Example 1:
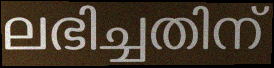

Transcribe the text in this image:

ലഭിച്ചതിന്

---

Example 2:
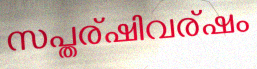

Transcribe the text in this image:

സപ്തര്ഷിവര്ഷം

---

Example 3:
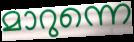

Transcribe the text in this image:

മാറുന്നെ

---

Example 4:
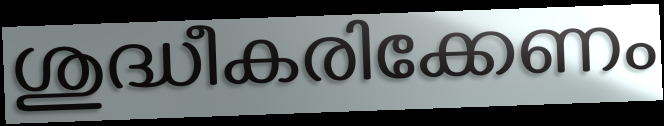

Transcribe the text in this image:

ശുദ്ധീകരിക്കേണം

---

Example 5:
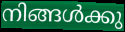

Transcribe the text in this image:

നിങ്ങൾക്കു